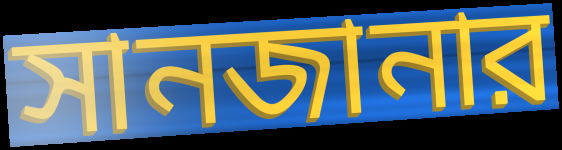
সানজানার